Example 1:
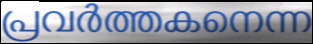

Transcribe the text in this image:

പ്രവർത്തകനെന്ന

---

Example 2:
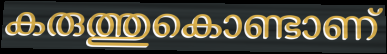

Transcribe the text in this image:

കരുത്തുകൊണ്ടാണ്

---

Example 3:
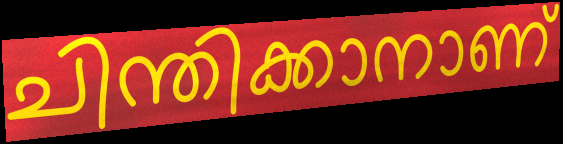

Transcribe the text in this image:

ചിന്തിക്കാനാണ്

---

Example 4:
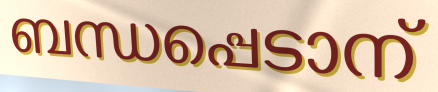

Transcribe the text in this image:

ബന്ധപ്പെടാന്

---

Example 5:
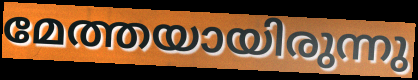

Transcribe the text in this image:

മേത്തയായിരുന്നു